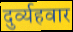
दुर्व्यहवार